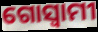
ଗୋସ୍ଵାମୀ